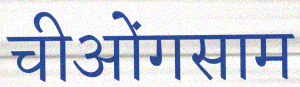
चीओंगसाम